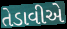
તેડાવીએ